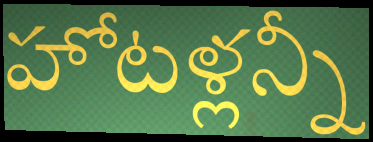
హోటళ్లన్నీ